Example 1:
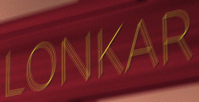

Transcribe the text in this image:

LONKAR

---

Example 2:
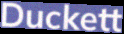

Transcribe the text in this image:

Duckett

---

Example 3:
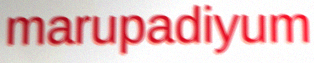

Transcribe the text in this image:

marupadiyum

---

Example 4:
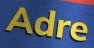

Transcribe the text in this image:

Adre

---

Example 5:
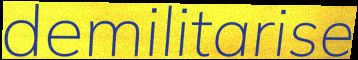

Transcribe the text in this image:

demilitarise